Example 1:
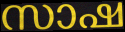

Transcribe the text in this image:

സാഷ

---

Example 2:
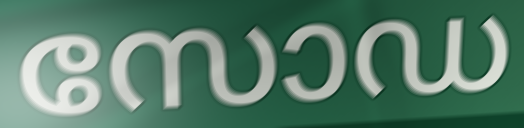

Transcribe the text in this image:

സോഡ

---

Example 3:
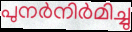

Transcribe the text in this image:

പുനർനിർമിച്ചു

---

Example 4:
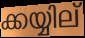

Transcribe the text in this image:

ക്കയ്യില്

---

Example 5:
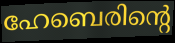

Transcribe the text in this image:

ഹേബെരിന്റെ